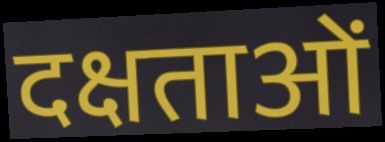
दक्षताओं